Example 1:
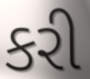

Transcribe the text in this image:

કરી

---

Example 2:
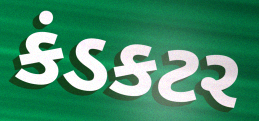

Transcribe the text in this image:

કંડકટર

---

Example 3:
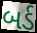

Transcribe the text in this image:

બર્ડ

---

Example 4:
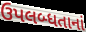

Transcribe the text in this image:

ઉપલબ્ધતાનાં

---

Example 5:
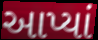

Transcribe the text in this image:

આપ્યાં